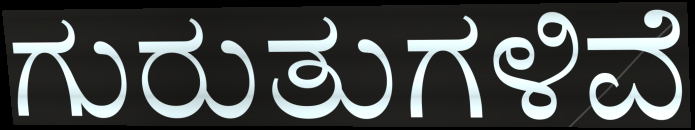
ಗುರುತುಗಳಿವೆ